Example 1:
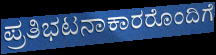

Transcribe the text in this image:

ಪ್ರತಿಭಟನಾಕಾರರೊಂದಿಗೆ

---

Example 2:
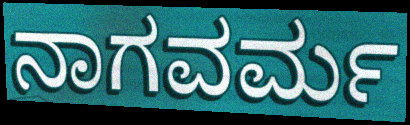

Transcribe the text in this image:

ನಾಗವರ್ಮ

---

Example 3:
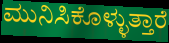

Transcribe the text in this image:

ಮುನಿಸಿಕೊಳ್ಳುತ್ತಾರೆ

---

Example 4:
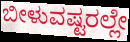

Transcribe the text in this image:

ಬೀಳುವಷ್ಟರಲ್ಲೇ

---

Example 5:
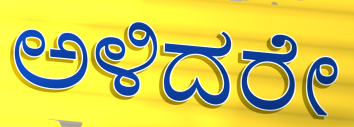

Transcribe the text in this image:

ಅಳಿದರೇ